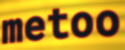
metoo